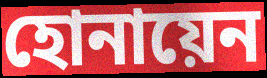
হোনায়েন